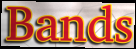
Bands